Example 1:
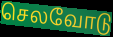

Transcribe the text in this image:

செலவோடு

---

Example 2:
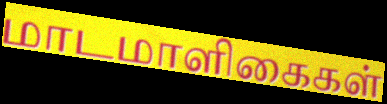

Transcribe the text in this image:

மாடமாளிகைகள்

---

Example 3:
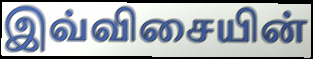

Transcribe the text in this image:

இவ்விசையின்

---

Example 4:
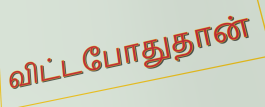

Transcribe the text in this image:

விட்டபோதுதான்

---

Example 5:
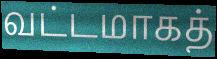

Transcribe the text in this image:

வட்டமாகத்